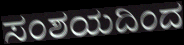
ಸಂಶಯದಿಂದ